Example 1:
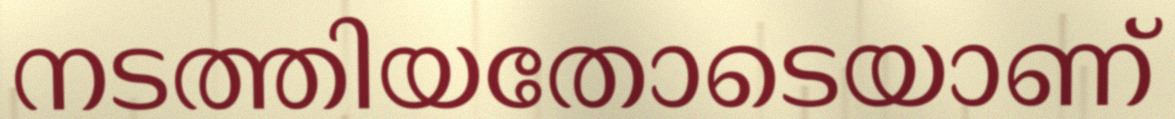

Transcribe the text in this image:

നടത്തിയതോടെയാണ്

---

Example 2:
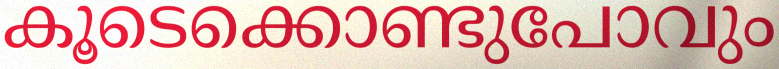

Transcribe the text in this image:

കൂടെക്കൊണ്ടുപോവും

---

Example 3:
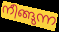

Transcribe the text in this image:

നീങ്ങുന്ന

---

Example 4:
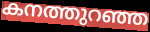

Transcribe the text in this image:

കനത്തുറഞ്ഞ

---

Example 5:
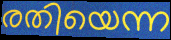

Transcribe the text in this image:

രതിയെന്ന